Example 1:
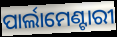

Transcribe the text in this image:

ପାର୍ଲାମେଣ୍ଟାରୀ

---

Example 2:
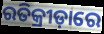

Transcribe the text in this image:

ରତିକ୍ରୀଡ଼ାରେ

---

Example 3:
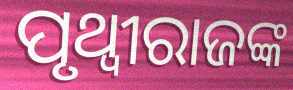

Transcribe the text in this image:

ପୃଥ୍ଵୀରାଜଙ୍କ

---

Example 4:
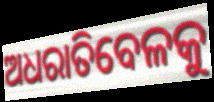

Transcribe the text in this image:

ଅଧରାତିବେଳକୁ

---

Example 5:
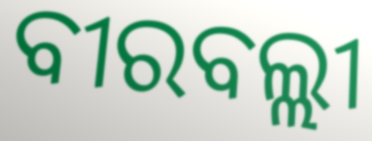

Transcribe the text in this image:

ବୀରବଲ୍ଲୀ